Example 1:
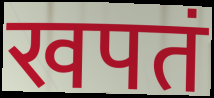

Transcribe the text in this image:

खपतं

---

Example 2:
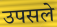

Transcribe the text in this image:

उपसले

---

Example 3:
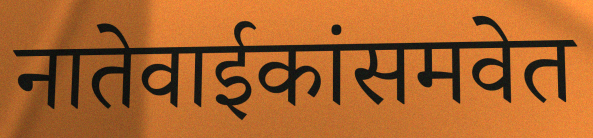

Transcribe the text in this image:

नातेवाईकांसमवेत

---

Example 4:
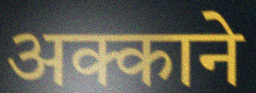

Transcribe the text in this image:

अक्काने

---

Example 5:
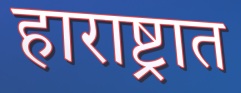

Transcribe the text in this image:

हाराष्ट्रात